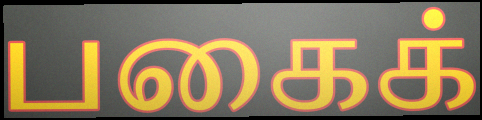
பகைக்